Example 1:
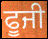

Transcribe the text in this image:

ਫੂਜੀ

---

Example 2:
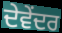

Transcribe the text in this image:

ਦੇਵੇਂਦਰ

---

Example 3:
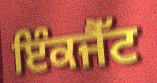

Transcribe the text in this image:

ਇੰਕਜੈੱਟ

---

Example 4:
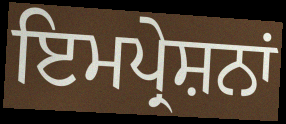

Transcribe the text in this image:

ਇਮਪ੍ਰੇਸ਼ਨਾਂ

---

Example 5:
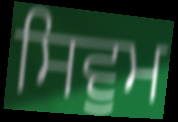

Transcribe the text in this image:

ਸਿਵੁਮ